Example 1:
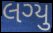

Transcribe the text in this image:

લગ્યુ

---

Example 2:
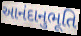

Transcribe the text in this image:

આનંદાનુભૂતિ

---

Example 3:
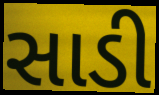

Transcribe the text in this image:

સાડી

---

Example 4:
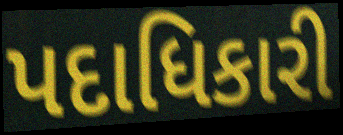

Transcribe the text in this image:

પદાધિકારી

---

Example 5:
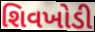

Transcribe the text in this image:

શિવખોડી